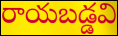
రాయబడ్డవి